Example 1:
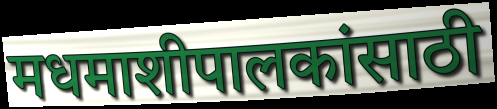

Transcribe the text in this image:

मधमाशीपालकांसाठी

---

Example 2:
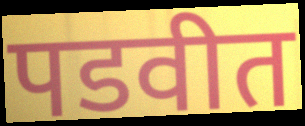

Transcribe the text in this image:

पडवीत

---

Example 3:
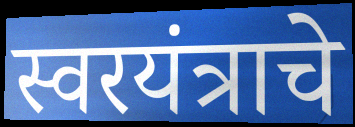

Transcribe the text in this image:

स्वरयंत्राचे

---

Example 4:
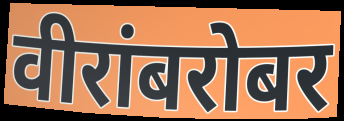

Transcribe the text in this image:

वीरांबरोबर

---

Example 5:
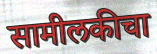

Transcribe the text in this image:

सामीलकीचा